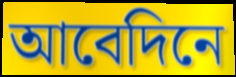
আবেদিনে